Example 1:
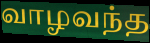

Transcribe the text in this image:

வாழவந்த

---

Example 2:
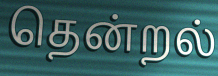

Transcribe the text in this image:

தென்றல்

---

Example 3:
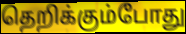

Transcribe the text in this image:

தெறிக்கும்போது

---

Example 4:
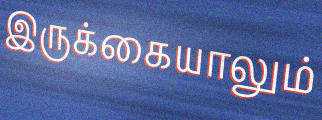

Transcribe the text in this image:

இருக்கையாலும்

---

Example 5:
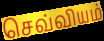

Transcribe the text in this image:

செவ்வியம்